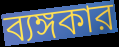
ব্যঙ্গকার